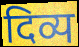
दिव्य